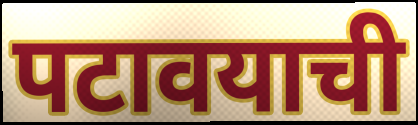
पटावयाची